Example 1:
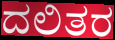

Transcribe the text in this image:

ದಲಿತರ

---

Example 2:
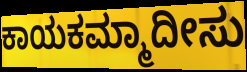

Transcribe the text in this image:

ಕಾಯಕಮ್ಮಾದೀಸು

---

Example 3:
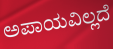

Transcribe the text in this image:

ಅಪಾಯವಿಲ್ಲದೆ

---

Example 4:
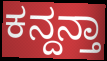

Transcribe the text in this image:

ಕನ್ದನ್ತಾ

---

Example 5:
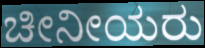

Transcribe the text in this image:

ಚೀನೀಯರು